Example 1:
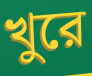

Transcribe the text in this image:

খুরে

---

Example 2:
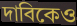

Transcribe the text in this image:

দাবিকেও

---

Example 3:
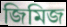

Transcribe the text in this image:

জিমিজ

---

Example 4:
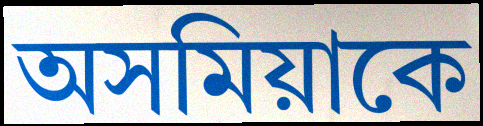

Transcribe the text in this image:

অসমিয়াকে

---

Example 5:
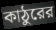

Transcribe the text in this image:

কাঠুরের